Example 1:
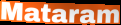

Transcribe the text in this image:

Mataram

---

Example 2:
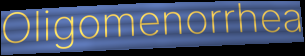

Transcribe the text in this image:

Oligomenorrhea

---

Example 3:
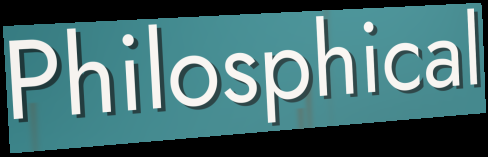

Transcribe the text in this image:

Philosphical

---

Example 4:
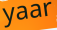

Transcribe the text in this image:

yaar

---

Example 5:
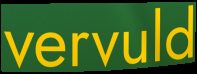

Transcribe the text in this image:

vervuld